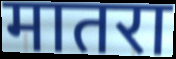
मातरा